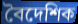
বৈদেশিক